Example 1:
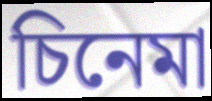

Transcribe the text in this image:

চিনেমা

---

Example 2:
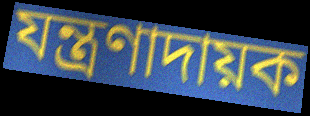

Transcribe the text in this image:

যন্ত্ৰণাদায়ক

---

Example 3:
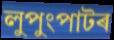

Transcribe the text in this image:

লুপুংপাটৰ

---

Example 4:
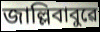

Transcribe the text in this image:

জাল্লিবাবুৱে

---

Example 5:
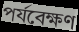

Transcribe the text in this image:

পৰ্যবেক্ষণ